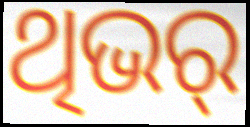
ଥିଭର୍